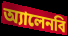
অ্যালেনবি